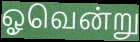
ஓவென்று